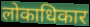
लोकाधिकार